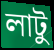
লাটু